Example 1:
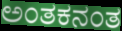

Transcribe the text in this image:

ಅಂತಕನಂತ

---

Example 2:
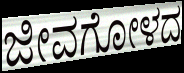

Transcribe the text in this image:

ಜೀವಗೋಳದ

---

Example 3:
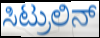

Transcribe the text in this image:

ಸಿಟ್ರುಲಿನ್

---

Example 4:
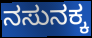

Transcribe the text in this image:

ನಸುನಕ್ಕ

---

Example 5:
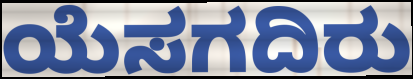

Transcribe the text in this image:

ಯೆಸಗದಿರು